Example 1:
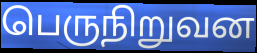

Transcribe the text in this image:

பெருநிறுவன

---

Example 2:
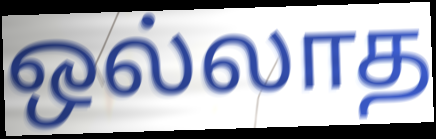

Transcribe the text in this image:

ஒல்லாத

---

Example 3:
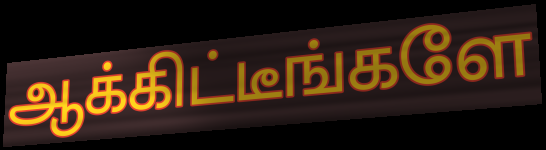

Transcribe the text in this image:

ஆக்கிட்டீங்களே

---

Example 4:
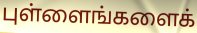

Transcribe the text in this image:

புள்ளைங்களைக்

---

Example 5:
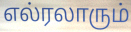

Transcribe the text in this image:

எல்ரலாரும்